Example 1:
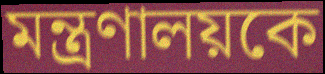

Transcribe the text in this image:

মন্ত্রণালয়কে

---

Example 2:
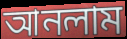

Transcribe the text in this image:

আনলাম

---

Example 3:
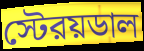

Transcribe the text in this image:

স্টেরয়ডাল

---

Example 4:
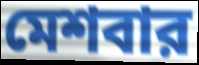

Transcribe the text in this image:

মেশবার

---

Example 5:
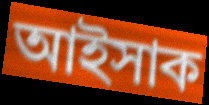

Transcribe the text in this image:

আইসাক